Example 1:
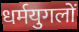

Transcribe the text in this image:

धर्मयुगलों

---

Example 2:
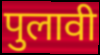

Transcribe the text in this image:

पुलावी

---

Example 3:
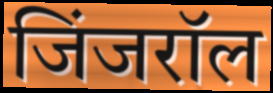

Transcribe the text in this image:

जिंजरॉल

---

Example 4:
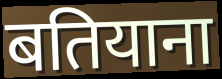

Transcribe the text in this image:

बतियाना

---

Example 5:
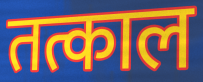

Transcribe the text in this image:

तत्काल